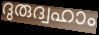
ദുരുദ്വഹാം